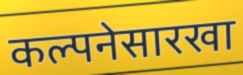
कल्पनेसारखा